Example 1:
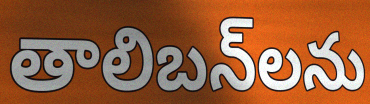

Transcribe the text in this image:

తాలిబన్‌లను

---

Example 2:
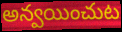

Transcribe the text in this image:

అన్వయించుట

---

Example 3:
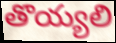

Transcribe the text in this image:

తొయ్యలి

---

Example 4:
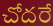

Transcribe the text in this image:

చోదరే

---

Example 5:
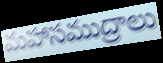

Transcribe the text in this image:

మహాసముద్రాలు